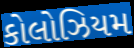
કોલોઝિયમ